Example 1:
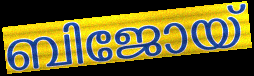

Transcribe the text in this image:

ബിജോയ്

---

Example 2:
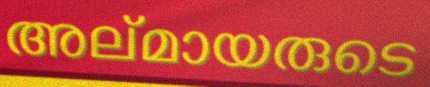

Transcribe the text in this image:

അല്മായരുടെ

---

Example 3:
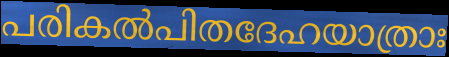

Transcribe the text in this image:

പരികൽപിതദേഹയാത്രാഃ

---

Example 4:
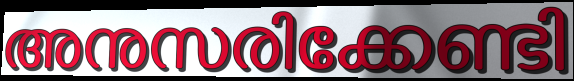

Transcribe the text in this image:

അനുസരിക്കേണ്ടി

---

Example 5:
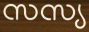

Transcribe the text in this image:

സസ്യ